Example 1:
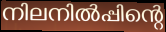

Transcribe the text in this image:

നിലനിൽപ്പിന്റെ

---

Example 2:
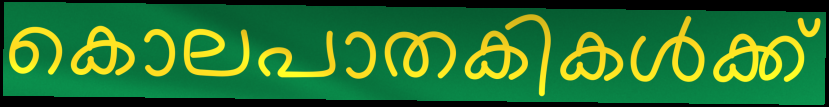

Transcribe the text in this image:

കൊലപാതകികൾക്ക്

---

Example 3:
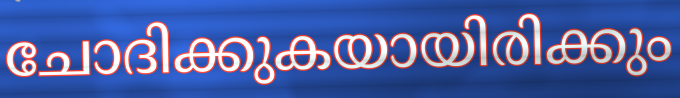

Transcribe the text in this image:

ചോദിക്കുകയായിരിക്കും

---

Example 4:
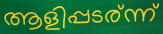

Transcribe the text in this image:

ആളിപ്പടര്ന്ന്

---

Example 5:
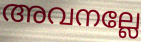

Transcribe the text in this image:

അവനല്ലേ